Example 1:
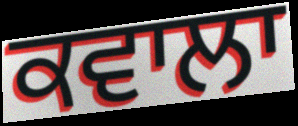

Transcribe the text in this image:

ਕਵਾਲਾ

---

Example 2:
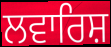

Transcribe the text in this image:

ਲਵਾਰਿਸ਼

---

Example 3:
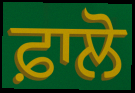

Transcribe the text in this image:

ਫ਼ਾਲੋ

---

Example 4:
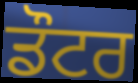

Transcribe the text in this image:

ਡੌਟਰ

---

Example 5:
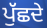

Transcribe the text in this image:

ਪੁੱਛਦੇ